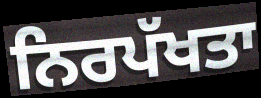
ਨਿਰਪੱਖਤਾ